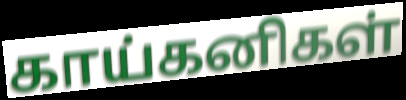
காய்கனிகள்